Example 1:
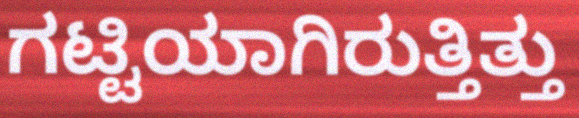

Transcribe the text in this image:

ಗಟ್ಟಿಯಾಗಿರುತ್ತಿತ್ತು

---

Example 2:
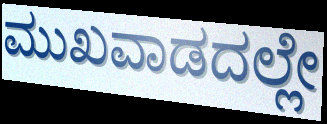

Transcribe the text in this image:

ಮುಖವಾಡದಲ್ಲೇ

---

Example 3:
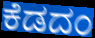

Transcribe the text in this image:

ಕೆಡದಂ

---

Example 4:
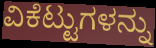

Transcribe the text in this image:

ವಿಕೆಟ್ಟುಗಳನ್ನು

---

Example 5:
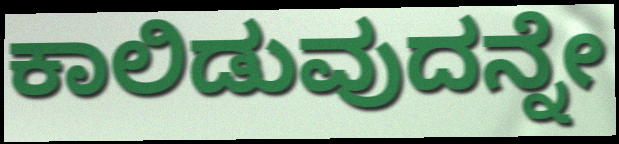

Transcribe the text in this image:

ಕಾಲಿಡುವುದನ್ನೇ